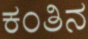
ಕಂತಿನ